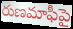
రుణమాఫీపై